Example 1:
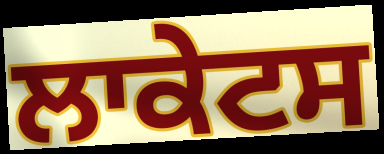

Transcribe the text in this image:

ਲਾਕੇਟਸ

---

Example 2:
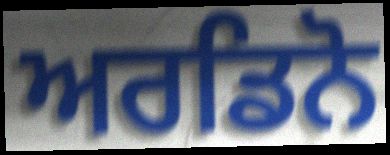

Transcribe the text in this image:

ਅਰਡਿਨੋ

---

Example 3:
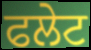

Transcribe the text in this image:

ਫਲੇਟ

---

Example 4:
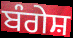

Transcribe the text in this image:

ਬੰਗੇਸ਼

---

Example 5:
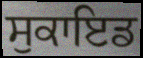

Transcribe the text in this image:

ਸੁਕਾਇਡ